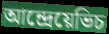
আন্দ্রেয়েভিচ